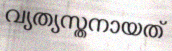
വ്യത്യസ്തനായത്